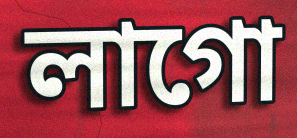
লাগো